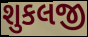
શુકલજી